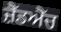
ਜ਼ੈੱਡਐੱਚ